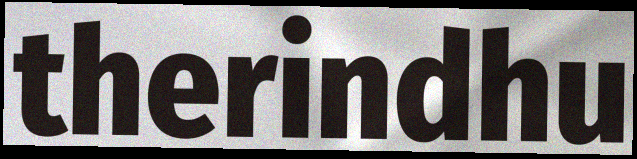
therindhu